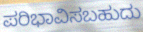
ಪರಿಭಾವಿಸಬಹುದು